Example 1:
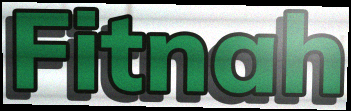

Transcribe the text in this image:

Fitnah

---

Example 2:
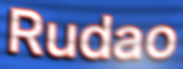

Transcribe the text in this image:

Rudao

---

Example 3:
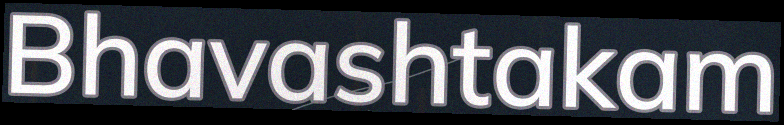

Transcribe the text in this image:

Bhavashtakam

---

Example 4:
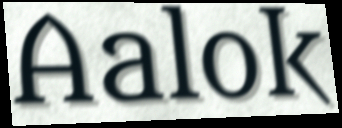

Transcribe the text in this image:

Aalok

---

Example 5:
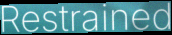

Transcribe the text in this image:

Restrained